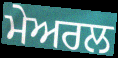
ਮੇਅਰਲ